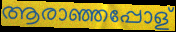
ആരാഞ്ഞപ്പോള്